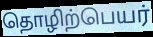
தொழிற்பெயர்